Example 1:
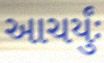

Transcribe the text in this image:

આચર્યુંઃ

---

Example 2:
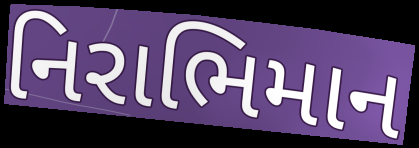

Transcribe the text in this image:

નિરાભિમાન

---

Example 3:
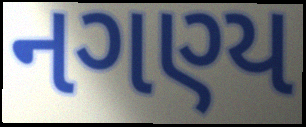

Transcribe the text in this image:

નગણ્ય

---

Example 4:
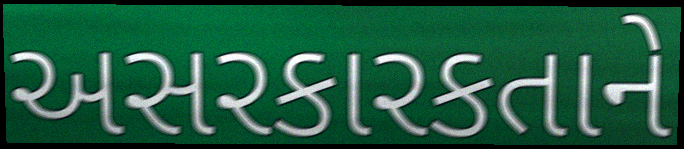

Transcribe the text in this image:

અસરકારકતાને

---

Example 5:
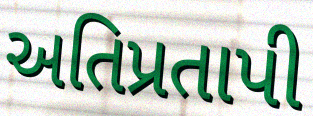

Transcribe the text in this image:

અતિપ્રતાપી